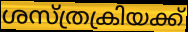
ശസ്ത്രക്രിയക്ക്